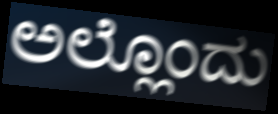
ಅಲ್ಲೊಂದು